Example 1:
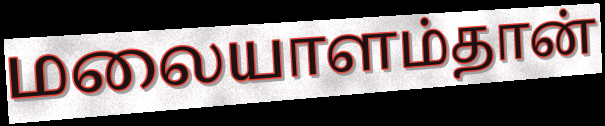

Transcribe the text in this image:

மலையாளம்தான்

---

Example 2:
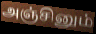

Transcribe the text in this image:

அஞ்சினும்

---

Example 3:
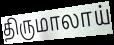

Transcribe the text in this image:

திருமாலாய்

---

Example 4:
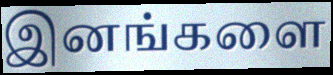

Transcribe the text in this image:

இனங்களை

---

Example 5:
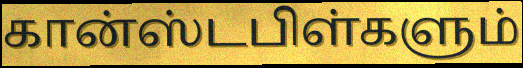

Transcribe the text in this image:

கான்ஸ்டபிள்களும்